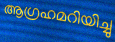
ആഗ്രഹമറിയിച്ചു